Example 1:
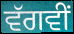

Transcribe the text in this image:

ਵੱਗਵੀਂ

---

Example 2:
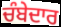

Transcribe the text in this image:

ਚੰਬੇਦਾਰ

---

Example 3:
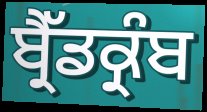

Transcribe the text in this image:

ਬ੍ਰੈੱਡਕ੍ਰੰਬ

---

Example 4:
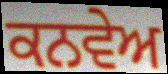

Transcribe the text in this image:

ਕਨਵੇਅ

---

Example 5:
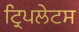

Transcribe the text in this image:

ਟ੍ਰਿਪਲੇਟਸ